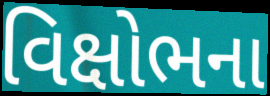
વિક્ષોભના